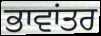
ਭਾਵਾਂਤਰ